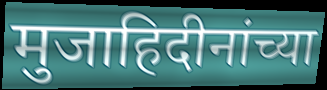
मुजाहिदीनांच्या